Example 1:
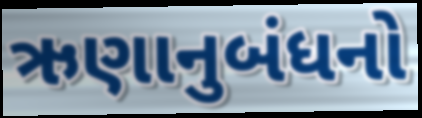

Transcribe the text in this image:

ઋણાનુબંધનો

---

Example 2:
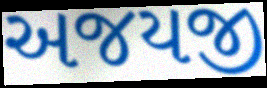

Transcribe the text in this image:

અજયજી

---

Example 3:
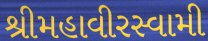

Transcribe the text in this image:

શ્રીમહાવીરસ્વામી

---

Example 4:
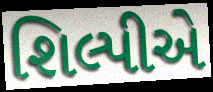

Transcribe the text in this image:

શિલ્પીએ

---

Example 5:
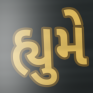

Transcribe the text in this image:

હ્યુમે